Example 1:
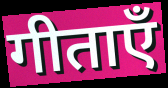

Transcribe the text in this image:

गीताएँ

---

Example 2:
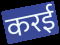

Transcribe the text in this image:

करई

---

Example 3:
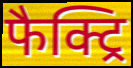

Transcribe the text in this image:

फैक्ट्रि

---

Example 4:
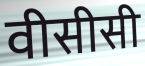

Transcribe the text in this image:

वीसीसी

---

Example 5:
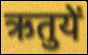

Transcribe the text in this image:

ऋतुयें